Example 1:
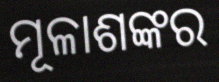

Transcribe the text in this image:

ମୂଳାଶଙ୍କର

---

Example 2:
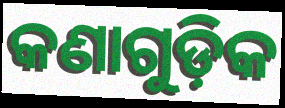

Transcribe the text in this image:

କଣାଗୁଡ଼ିକ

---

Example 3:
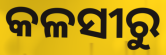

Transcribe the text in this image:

କଳସୀରୁ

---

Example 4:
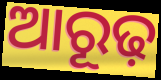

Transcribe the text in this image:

ଆରୂଢ଼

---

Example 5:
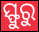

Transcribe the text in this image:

ସ୍ଫୁରୁ